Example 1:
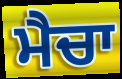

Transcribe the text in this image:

ਮੈਚਾ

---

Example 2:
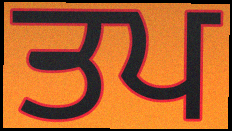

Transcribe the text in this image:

ਤਪ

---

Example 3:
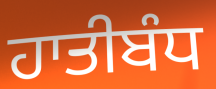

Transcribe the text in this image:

ਹਾਤੀਬੰਧ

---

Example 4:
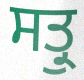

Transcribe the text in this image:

ਸਤ੍ਰੁ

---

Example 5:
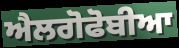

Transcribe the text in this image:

ਐਲਗੋਫੋਬੀਆ